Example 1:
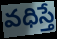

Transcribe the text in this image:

వధిస్తే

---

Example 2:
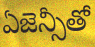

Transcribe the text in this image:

ఏజెన్సీతో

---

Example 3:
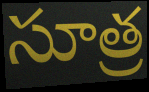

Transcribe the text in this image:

సూత్ర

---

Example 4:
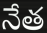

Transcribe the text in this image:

నేత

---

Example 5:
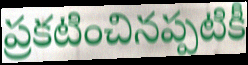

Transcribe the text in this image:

ప్రకటించినప్పటికీ